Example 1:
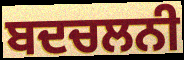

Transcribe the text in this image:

ਬਦਚਲਨੀ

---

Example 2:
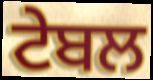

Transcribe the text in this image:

ਟੇਬਲ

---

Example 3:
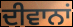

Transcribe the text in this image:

ਦੀਵਾਨਾਂ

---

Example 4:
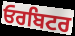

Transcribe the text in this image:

ਓਰਬਿਟਰ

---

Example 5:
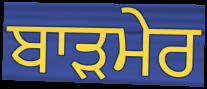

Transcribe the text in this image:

ਬਾੜਮੇਰ